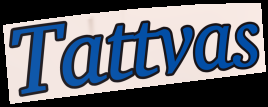
Tattvas